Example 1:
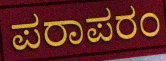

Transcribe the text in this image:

ಪರಾಪರಂ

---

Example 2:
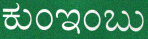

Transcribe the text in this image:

ಕುಂಇಂಬು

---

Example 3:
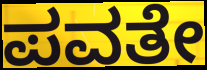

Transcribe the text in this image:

ಪವತೇ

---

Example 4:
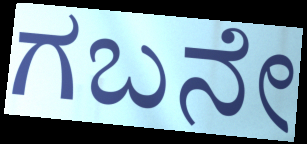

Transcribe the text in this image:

ಗಬನೇ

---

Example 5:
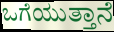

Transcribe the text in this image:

ಒಗೆಯುತ್ತಾನೆ